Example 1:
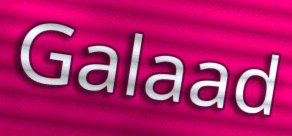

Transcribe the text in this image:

Galaad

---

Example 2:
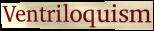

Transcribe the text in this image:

Ventriloquism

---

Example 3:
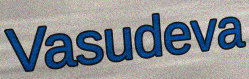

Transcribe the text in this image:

Vasudeva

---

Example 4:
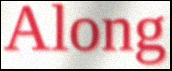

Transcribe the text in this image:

Along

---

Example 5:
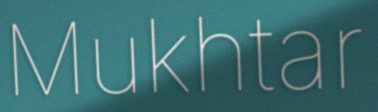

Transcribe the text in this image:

Mukhtar